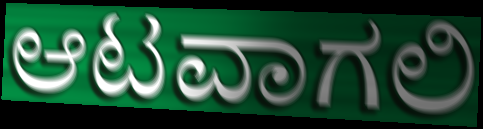
ಆಟವಾಗಲಿ